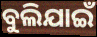
ବୁଲିଯାଇଁ